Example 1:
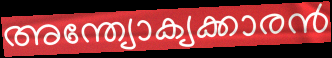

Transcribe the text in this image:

അന്ത്യോക്യക്കാരൻ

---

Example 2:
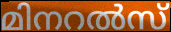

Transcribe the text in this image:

മിനറൽസ്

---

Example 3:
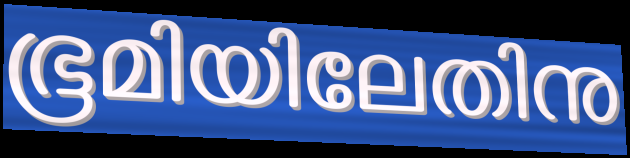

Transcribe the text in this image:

ഭൂമിയിലേതിനു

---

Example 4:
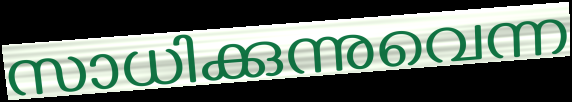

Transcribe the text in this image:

സാധിക്കുന്നുവെന്ന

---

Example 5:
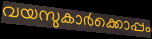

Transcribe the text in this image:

വയസുകാർക്കൊപ്പം